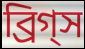
ব্রিগ্‌স